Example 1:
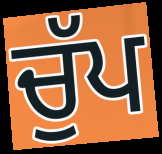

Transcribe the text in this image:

ਚੁੱਪ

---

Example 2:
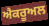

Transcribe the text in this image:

ਐਕਰੂਅਲ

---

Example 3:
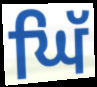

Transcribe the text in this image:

ਘਿੱ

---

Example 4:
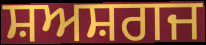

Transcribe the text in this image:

ਸ਼ਅਸ਼ਗਜ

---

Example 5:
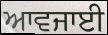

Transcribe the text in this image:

ਆਵਜਾਈ